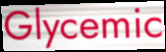
Glycemic